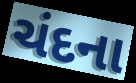
ચંદના